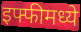
इफ्फीमध्ये